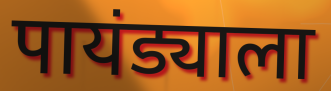
पायंड्याला